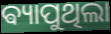
ଵ୍ୟାପୁଥିଲା